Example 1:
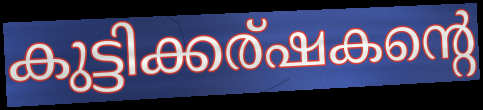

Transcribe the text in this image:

കുട്ടിക്കര്ഷകന്റെ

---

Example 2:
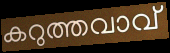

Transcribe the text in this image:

കറുത്തവാവ്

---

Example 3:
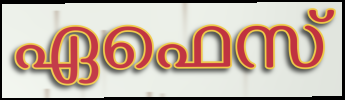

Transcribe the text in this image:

ഏഫെസ്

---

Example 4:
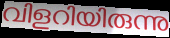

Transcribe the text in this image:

വിളറിയിരുന്നു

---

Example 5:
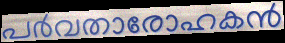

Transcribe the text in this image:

പർവതാരോഹകൻ